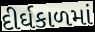
દીર્ઘકાળમાં